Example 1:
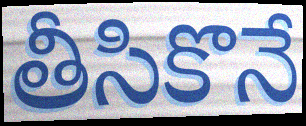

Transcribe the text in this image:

తీసికొనే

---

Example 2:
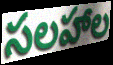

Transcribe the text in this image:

సలహాల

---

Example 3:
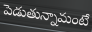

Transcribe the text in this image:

పెడుతున్నామంటే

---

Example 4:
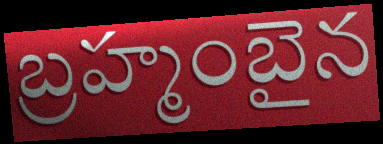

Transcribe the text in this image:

బ్రహ్మంబైన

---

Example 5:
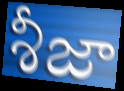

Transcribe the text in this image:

శీజా